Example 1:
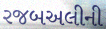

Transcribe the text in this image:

રજબઅલીની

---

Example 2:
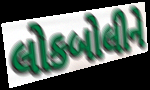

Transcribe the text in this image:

લોકબોલીને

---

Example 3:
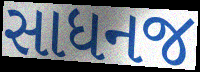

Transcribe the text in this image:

સાધનજ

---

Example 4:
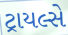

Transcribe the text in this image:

ટ્રાયલ્સે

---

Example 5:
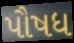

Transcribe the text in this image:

પૌષધ